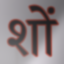
शों